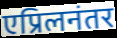
एप्रिलनंतर